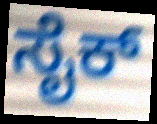
ಸೈಕ್